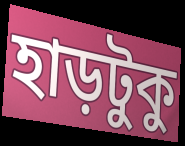
হাড়টুকু